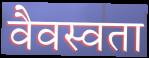
वैवस्वता